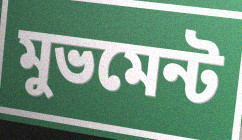
মুভমেন্ট